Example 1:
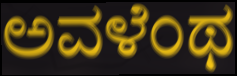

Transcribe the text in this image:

ಅವಳೆಂಥ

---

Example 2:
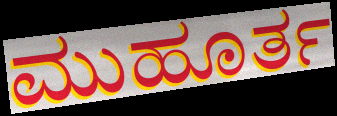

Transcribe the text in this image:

ಮುಹೂರ್ತ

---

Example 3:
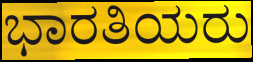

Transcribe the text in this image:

ಭಾರತಿಯರು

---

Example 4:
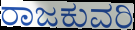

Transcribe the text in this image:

ರಾಜಕುವರಿ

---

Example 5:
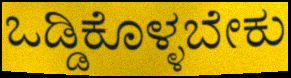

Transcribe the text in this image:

ಒಡ್ಡಿಕೊಳ್ಳಬೇಕು